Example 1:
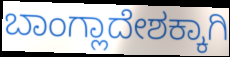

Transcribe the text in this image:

ಬಾಂಗ್ಲಾದೇಶಕ್ಕಾಗಿ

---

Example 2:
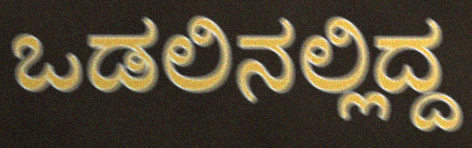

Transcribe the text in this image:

ಒಡಲಿನಲ್ಲಿದ್ದ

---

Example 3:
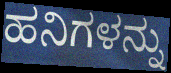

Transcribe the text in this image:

ಹನಿಗಳನ್ನು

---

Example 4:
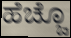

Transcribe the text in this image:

ಹೆಚ್ಚೊ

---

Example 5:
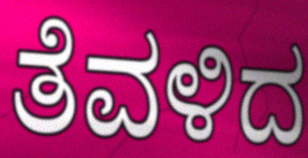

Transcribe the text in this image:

ತೆವಳಿದ